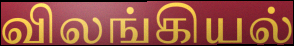
விலங்கியல்